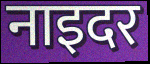
नाइदर